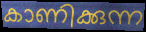
കാണിക്കുന്ന